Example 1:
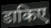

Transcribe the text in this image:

डाकिए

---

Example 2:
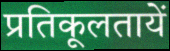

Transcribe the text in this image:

प्रतिकूलतायें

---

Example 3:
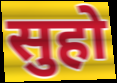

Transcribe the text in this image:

सुहो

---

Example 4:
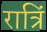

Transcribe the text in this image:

रात्रिं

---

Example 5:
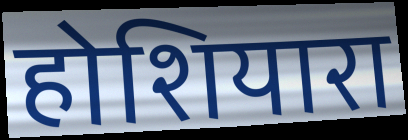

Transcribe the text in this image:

होशियारा